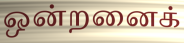
ஒன்றனைக்